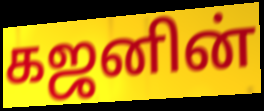
கஜனின்